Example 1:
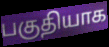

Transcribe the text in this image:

பகுதியாக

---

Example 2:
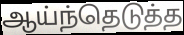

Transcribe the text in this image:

ஆய்ந்தெடுத்த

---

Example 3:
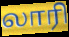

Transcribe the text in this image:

லாரி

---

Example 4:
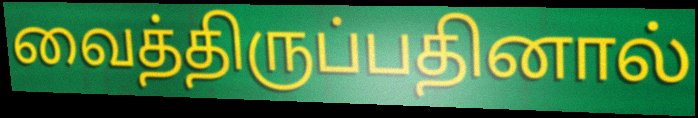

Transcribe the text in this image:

வைத்திருப்பதினால்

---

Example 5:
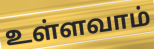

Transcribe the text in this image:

உள்ளவாம்